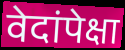
वेदांपेक्षा